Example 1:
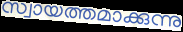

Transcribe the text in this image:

സ്വായത്തമാക്കുന്നു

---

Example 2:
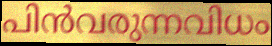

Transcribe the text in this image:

പിൻവരുന്നവിധം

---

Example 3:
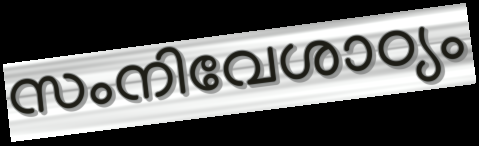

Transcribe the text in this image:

സംനിവേശാഠ്യം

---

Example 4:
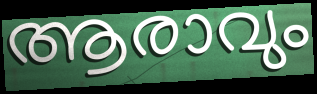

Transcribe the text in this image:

ആരാവും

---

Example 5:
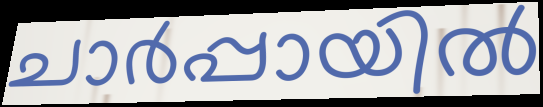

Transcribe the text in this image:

ചാർപ്പായിൽ